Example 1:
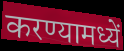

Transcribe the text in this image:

करण्यामध्यें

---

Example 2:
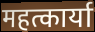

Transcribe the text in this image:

महत्कार्या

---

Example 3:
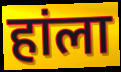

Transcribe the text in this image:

हांला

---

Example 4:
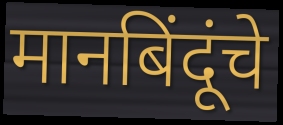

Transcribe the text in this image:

मानबिंदूंचे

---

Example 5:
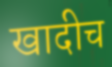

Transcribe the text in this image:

खादीच